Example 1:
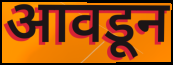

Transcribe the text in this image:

आवडून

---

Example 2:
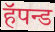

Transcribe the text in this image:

हॅपन्ड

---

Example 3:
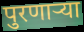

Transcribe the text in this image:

पुरणाऱ्या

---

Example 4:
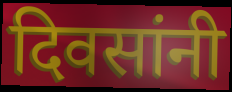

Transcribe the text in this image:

दिवसांनी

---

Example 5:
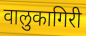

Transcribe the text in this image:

वालुकागिरी